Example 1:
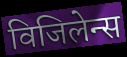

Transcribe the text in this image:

विजिलेन्स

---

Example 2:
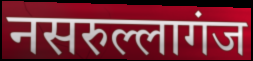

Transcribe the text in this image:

नसरुल्लागंज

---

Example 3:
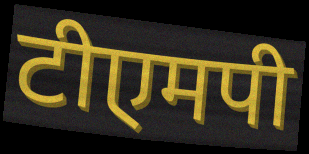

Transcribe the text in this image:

टीएमपी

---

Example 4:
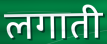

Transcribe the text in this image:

लगाती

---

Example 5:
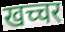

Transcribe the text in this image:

खच्चर